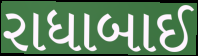
રાધાબાઈ